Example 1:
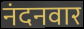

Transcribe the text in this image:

नंदनवार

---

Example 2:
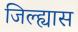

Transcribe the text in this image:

जिल्ह्यास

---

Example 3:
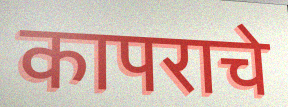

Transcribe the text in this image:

कापराचे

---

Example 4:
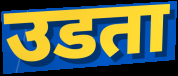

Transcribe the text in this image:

उडता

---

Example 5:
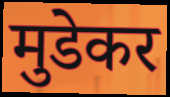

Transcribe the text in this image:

मुडेकर